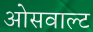
ओसवाल्ट